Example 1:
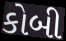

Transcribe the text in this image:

કોબી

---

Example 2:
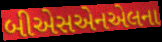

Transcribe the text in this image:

બીએસએનએલના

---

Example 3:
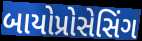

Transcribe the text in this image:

બાયોપ્રોસેસિંગ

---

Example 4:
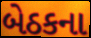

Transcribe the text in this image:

બેઠકના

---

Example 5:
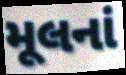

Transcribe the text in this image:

મૂલનાં